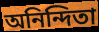
অনিন্দিতা